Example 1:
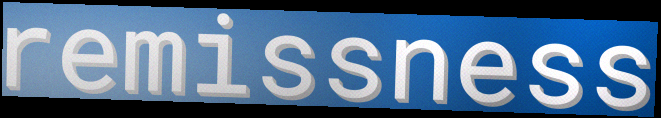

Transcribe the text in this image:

remissness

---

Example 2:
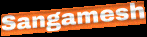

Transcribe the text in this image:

Sangamesh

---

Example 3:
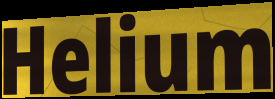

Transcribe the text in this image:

Helium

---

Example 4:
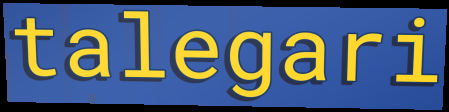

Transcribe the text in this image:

talegari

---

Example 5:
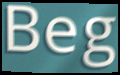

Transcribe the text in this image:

Beg